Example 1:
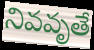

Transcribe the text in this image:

నివవృతే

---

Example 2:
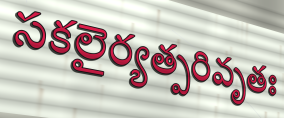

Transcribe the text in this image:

సకలైర్యత్పరివృతః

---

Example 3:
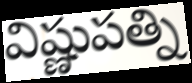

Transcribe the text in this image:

విష్ణుపత్ని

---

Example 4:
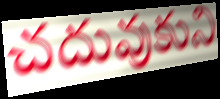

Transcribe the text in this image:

చదువుకుని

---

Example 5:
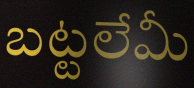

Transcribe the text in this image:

బట్టలేమీ